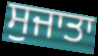
ਸੁਜਾਤਾ